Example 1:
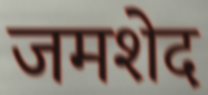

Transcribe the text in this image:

जमशेद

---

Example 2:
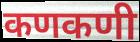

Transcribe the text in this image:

कणकणी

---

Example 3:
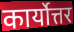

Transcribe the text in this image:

कार्योत्तर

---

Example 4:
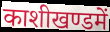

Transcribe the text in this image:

काशीखण्डमें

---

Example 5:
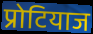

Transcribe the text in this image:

प्रोटियाज